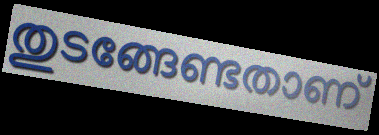
തുടങ്ങേണ്ടതാണ്